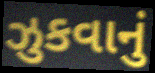
ઝુકવાનું